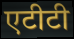
एटीटी